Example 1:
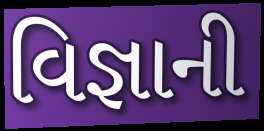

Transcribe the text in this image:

વિજ્ઞાની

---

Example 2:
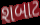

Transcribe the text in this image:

શબાટ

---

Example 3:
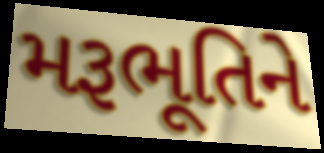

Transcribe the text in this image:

મરૂભૂતિને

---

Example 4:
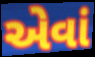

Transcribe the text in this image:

એવાં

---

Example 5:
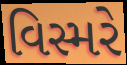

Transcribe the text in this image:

વિસ્મરે